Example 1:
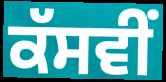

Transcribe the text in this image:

ਕੱਸਵੀਂ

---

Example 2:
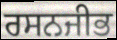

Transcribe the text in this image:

ਰਸਨਜੀਭ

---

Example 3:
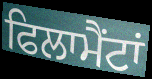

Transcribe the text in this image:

ਫਿਲਾਮੈਂਟਾਂ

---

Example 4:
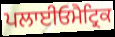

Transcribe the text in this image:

ਪਲਾਈਓਮੈਟ੍ਰਿਕ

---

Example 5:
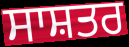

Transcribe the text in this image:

ਸਾਸ਼ਤਰ